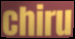
chiru